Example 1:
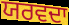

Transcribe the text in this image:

ਯਰਵਦਾ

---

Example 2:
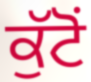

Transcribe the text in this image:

ਕੁੱਟੋਂ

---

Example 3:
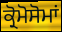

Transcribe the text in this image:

ਕ੍ਰੋਮੋਸੋਮਾਂ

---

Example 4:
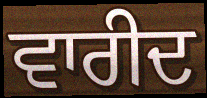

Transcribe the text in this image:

ਵਾਰੀਦ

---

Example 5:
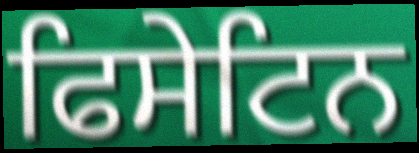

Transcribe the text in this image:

ਫਿਸੇਟਿਨ